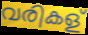
വരികള്